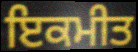
ਇਕਮੀਤ